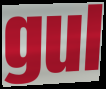
gul